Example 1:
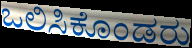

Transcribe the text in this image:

ಒಲಿಸಿಕೊಂಡರು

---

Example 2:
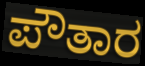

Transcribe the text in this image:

ಪೌತಾರ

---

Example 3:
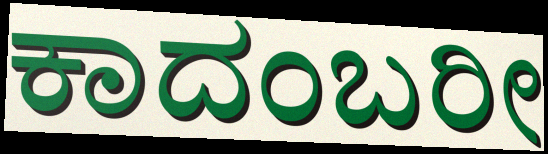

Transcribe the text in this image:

ಕಾದಂಬರೀ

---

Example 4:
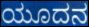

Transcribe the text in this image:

ಯೂದನ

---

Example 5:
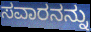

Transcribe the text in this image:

ಸವಾರನನ್ನು